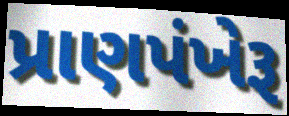
પ્રાણપંખેરૂ